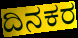
ದಿನಕರ